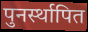
पुनर्स्‍थापित